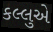
કલ્લુએ